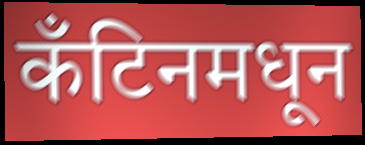
कँटिनमधून